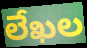
లేఖల